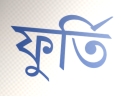
ফুৰ্তি